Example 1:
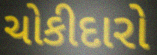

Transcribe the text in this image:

ચોકીદારો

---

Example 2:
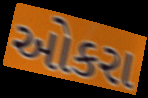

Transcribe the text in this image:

ઓકરા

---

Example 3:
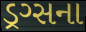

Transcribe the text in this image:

ડ્રગ્સના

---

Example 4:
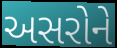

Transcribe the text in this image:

અસરોને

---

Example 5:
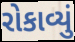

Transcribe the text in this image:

રોકાવ્યું